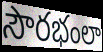
సౌరభంలా